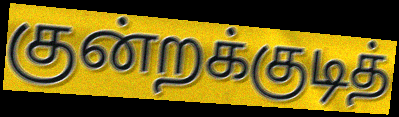
குன்றக்குடித்